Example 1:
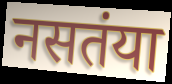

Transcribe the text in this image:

नसतंया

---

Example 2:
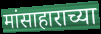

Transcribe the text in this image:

मांसाहाराच्या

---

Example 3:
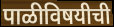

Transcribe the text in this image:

पाळीविषयीची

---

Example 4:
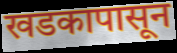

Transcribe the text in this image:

खडकापासून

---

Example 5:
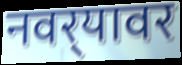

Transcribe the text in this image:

नवर्‍यावर